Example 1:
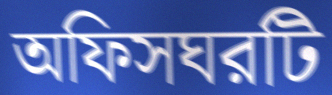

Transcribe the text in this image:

অফিসঘরটি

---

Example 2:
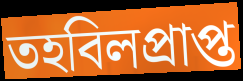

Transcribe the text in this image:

তহবিলপ্রাপ্ত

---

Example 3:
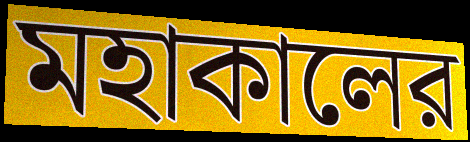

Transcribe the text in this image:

মহাকালের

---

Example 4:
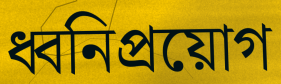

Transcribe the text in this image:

ধ্বনিপ্রয়োগ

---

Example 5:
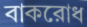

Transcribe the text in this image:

বাকরোধ